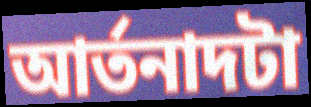
আর্তনাদটা